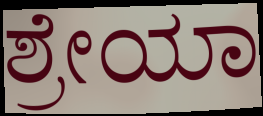
ಶ್ರೇಯಾ